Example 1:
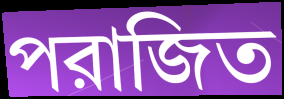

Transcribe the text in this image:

পরাজিত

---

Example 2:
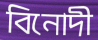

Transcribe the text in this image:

বিনোদী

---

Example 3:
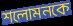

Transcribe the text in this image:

শলোমনকে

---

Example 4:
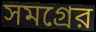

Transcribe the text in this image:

সমগ্রের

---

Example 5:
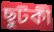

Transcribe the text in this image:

ছুটকী